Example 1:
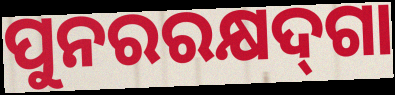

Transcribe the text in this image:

ପୁନରରକ୍ଷଦ୍‌ଗା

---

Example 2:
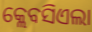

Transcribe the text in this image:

କ୍ଲେବସିଏଲା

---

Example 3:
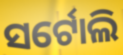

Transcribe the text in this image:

ସର୍ଟୋଲି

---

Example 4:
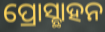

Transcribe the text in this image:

ପ୍ରୋସ୍ଛାହନ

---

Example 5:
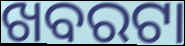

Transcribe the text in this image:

ଖବରଟା